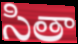
సితా